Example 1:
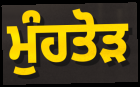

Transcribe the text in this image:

ਮੁੰਹਤੋੜ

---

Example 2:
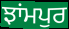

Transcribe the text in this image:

ਝਾਂਮਪੁਰ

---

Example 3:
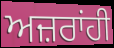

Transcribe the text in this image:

ਅਜ਼ਰਾਂਹੀ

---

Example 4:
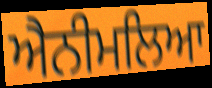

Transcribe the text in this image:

ਐਨੀਮਲਿਆ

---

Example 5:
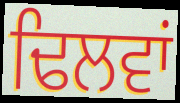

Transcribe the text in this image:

ਢਿਲਵਾਂ